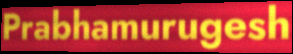
Prabhamurugesh